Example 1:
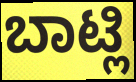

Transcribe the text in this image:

ಬಾಟ್ಲಿ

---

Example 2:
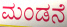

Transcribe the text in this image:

ಮಂಡನೆ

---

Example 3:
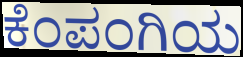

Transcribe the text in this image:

ಕೆಂಪಂಗಿಯ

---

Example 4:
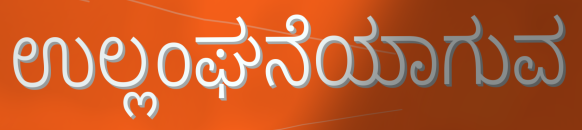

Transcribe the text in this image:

ಉಲ್ಲಂಘನೆಯಾಗುವ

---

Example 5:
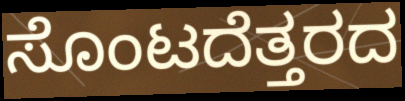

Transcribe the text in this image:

ಸೊಂಟದೆತ್ತರದ